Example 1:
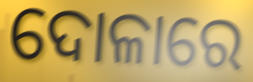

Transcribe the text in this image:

ଦୋଳାରେ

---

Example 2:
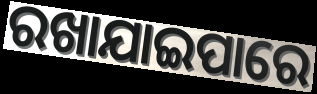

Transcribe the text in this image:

ରଖାଯାଇପାରେ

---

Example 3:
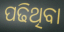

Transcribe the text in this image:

ପଢିଥିବା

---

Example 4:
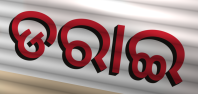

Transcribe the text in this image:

ଡରାଇ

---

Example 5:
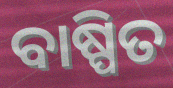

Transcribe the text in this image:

ବାଷ୍ପିତ